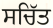
ਸਚਿੱਤ